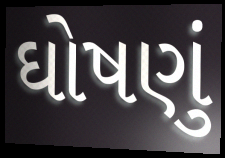
ઘોષણું